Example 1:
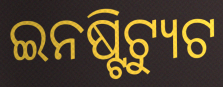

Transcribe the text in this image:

ଇନଷ୍ଟିଟ୍ୟୁଟ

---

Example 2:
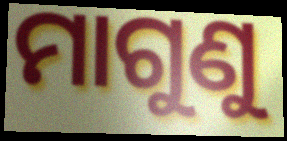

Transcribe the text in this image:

ମାଗୁଣୁ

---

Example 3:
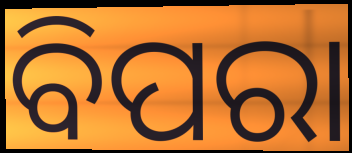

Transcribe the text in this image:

ବିପରା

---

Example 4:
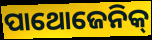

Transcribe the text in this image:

ପାଥୋଜେନିକ୍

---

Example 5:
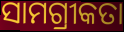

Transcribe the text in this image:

ସାମଗ୍ରୀକତା